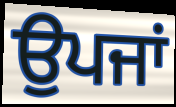
ਉਪਜਾਂ